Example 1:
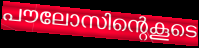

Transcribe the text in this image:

പൗലോസിന്റെകൂടെ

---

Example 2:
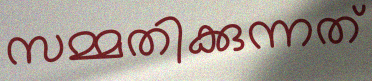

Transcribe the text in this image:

സമ്മതിക്കുന്നത്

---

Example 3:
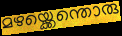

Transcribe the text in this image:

മഴയ്ക്കെന്തൊരു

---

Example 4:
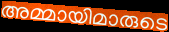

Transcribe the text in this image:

അമ്മായിമാരുടെ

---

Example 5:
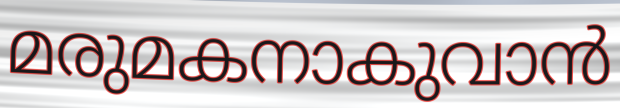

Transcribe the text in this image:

മരുമകനാകുവാൻ